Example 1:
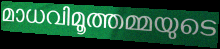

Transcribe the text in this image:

മാധവിമൂത്തമ്മയുടെ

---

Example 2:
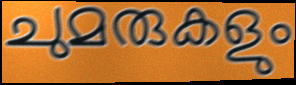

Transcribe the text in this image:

ചുമരുകളും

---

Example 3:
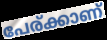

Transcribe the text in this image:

പേര്ക്കാണ്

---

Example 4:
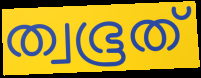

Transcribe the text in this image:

ത്വഭൂത്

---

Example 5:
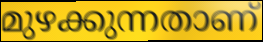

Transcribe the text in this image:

മുഴക്കുന്നതാണ്